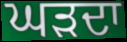
ਘੜਦਾ